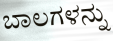
ಬಾಲಗಳನ್ನು